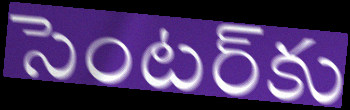
సెంటర్‌కు